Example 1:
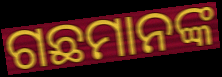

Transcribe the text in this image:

ଗଛମାନଙ୍କ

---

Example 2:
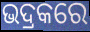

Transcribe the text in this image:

ଭଦ୍ରକରେ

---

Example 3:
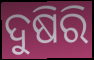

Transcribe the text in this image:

ଦୁଷିରି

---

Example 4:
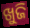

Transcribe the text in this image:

ଖୁଜି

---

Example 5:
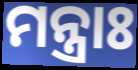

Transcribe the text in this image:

ମନ୍ତ୍ରାଃ